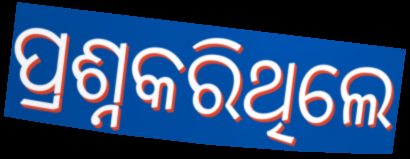
ପ୍ରଶ୍ନକରିଥିଲେ